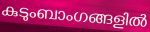
കുടുംബാംഗങ്ങളിൽ